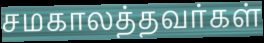
சமகாலத்தவர்கள்